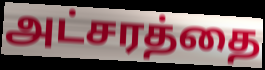
அட்சரத்தை